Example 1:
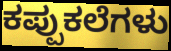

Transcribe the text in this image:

ಕಪ್ಪುಕಲೆಗಳು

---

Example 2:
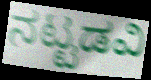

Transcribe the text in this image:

ನಟ್ಟಡವಿ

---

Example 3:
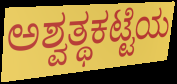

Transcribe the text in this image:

ಅಶ್ವತ್ಥಕಟ್ಟೆಯ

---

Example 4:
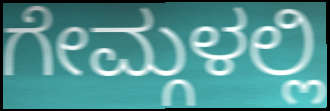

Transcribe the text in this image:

ಗೇಮ್ಗಳಲ್ಲಿ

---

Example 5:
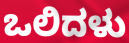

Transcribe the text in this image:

ಒಲಿದಳು